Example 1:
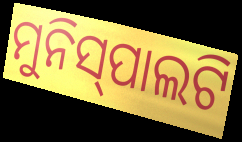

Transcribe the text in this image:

ମୁନିସ୍‍ପାଲଟି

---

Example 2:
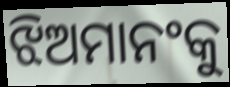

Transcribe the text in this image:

ଝିଅମାନଂକୁ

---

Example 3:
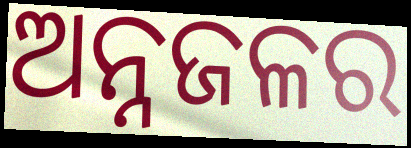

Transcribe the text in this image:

ଅନ୍ନଜଳର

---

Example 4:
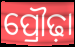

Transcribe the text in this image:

ପ୍ରୌଢ଼ା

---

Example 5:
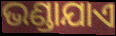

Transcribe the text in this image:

ଭଣ୍ଡାଯାଏ